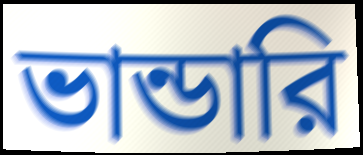
ভান্ডারি